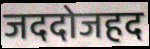
जददोजहद